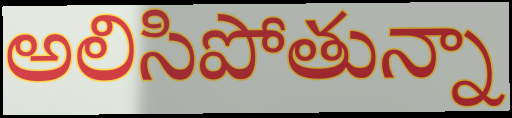
అలిసిపోతున్నా